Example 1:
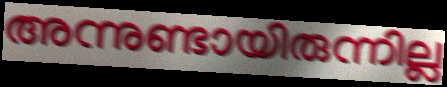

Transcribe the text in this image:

അന്നുണ്ടായിരുന്നില്ല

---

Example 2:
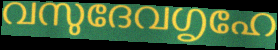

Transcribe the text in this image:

വസുദേവഗൃഹേ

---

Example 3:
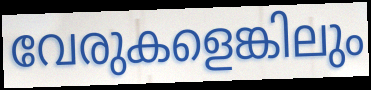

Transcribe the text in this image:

വേരുകളെങ്കിലും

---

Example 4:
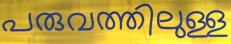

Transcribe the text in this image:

പരുവത്തിലുള്ള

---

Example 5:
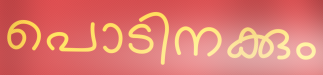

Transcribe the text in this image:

പൊടിനക്കും